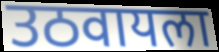
उठवायला